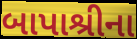
બાપાશ્રીના